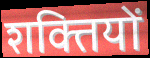
शक्तियों